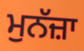
ਮੁਨੱਜ਼ਾ